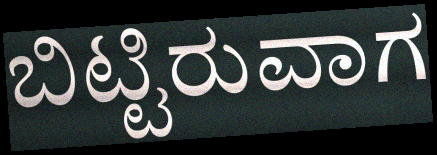
ಬಿಟ್ಟಿರುವಾಗ